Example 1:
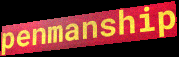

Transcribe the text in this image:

penmanship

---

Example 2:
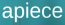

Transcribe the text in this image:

apiece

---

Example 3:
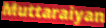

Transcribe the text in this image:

Muttaraiyan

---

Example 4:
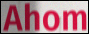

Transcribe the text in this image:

Ahom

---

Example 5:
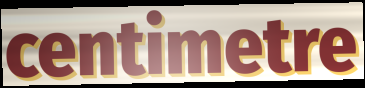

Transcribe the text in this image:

centimetre